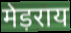
मेड़राय